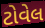
ટોવેલ